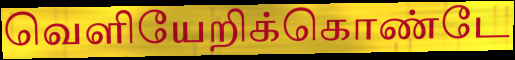
வெளியேறிக்கொண்டே